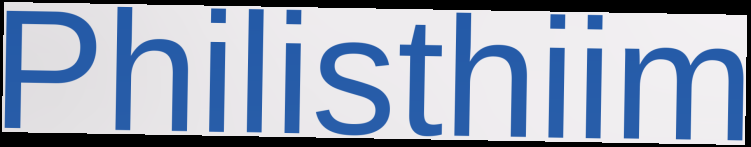
Philisthiim